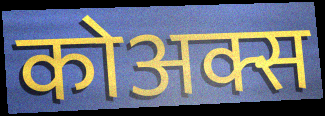
कोअक्स